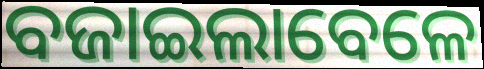
ବଜାଇଲାବେଳେ